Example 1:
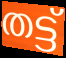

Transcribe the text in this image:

തട്ട്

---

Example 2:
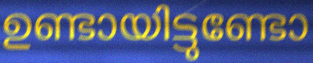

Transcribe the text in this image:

ഉണ്ടായിട്ടുണ്ടോ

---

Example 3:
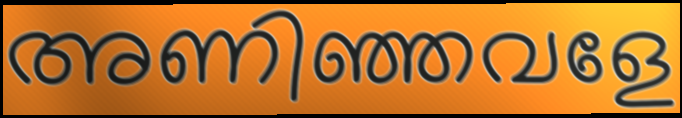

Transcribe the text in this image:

അണിഞ്ഞവളേ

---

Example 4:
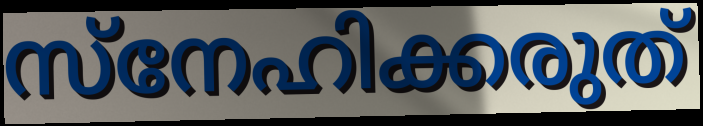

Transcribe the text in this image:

സ്നേഹിക്കരുത്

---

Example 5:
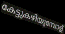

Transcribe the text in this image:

കേട്ടുകഴിയുമ്പോള്